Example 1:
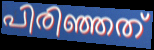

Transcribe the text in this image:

പിരിഞ്ഞത്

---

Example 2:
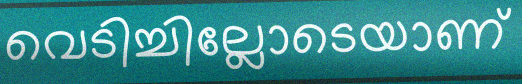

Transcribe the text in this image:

വെടിച്ചില്ലോടെയാണ്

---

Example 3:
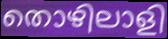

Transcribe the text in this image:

തൊഴിലാളി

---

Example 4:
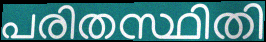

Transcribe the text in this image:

പരിതസ്ഥിതി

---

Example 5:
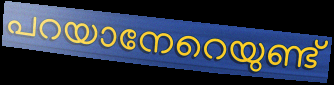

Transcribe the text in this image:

പറയാനേറെയുണ്ട്